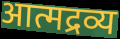
आत्मद्रव्य